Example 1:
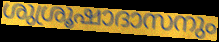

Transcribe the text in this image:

ശുശ്രൂഷാദാസനും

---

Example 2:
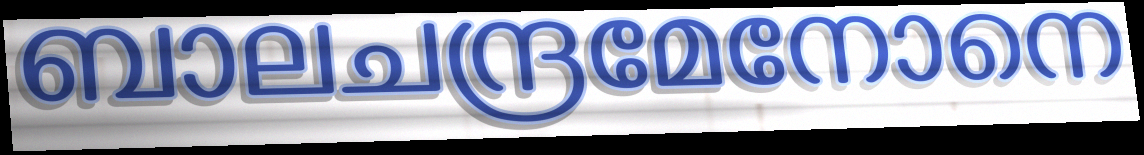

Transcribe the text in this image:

ബാലചന്ദ്രമേനോനെ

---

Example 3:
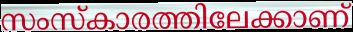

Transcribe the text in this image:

സംസ്കാരത്തിലേക്കാണ്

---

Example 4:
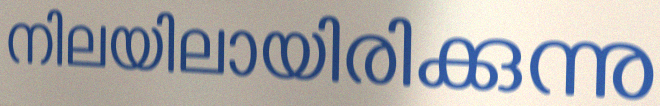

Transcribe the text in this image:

നിലയിലായിരിക്കുന്നു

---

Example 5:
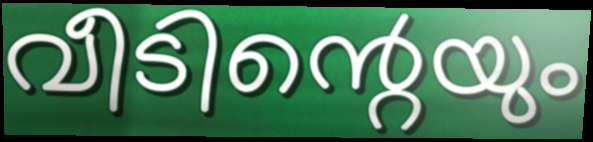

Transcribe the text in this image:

വീടിന്റെയും